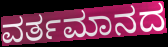
ವರ್ತಮಾನದ